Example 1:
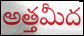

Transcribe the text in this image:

అత్తమీద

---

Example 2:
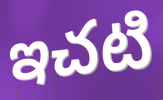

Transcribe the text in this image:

ఇచటి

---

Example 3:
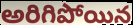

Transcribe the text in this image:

అరిగిపోయిన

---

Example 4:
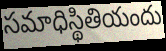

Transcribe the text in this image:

సమాధిస్థితియందు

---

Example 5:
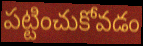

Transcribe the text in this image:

పట్టించుకోవడం